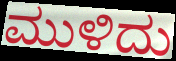
ಮುಳಿದು